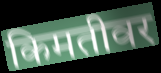
किमतीवर